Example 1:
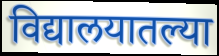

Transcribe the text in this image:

विद्यालयातल्या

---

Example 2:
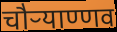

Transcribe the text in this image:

चौऱ्याण्णव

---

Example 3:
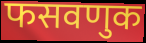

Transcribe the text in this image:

फसवणुक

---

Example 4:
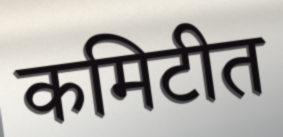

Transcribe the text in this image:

कमिटीत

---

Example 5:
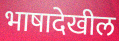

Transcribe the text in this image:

भाषादेखील